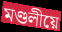
মণ্ডলীয়ে